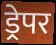
ड्रेपर